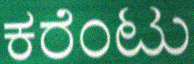
ಕರೆಂಟು